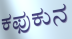
ಕಫುಕುನ